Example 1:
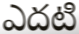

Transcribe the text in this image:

ఎదటి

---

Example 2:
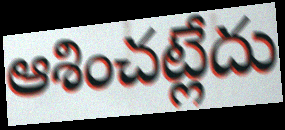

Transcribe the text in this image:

ఆశించట్లేదు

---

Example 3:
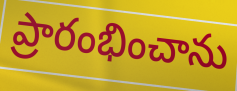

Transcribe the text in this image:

ప్రారంభించాను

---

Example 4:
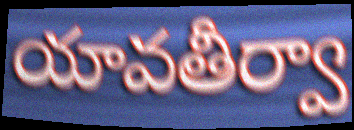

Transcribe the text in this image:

యావతీర్వా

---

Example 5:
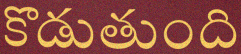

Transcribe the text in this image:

కొడుతుంది